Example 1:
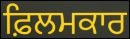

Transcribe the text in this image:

ਫ਼ਿਲਮਕਾਰ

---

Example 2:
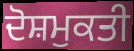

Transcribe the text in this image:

ਦੋਸ਼ਮੁਕਤੀ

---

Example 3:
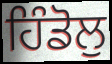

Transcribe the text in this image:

ਹਿੰਡੋਲੁ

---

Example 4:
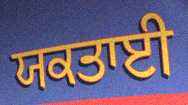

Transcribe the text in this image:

ਯਕਤਾਈ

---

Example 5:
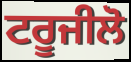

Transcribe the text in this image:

ਟਰੂਜੀਲੋ